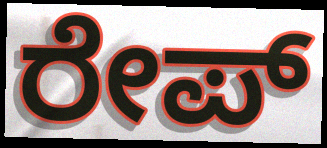
ರೇಪ್